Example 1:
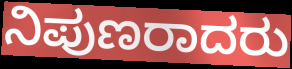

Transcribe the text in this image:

ನಿಪುಣರಾದರು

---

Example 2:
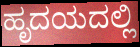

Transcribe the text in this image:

ಹೃದಯದಲ್ಲಿ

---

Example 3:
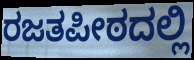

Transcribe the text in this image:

ರಜತಪೀಠದಲ್ಲಿ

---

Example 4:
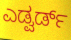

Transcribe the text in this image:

ಎಡ್ವರ್ಡ್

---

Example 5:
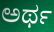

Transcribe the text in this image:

ಅರ್ಥ